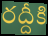
రద్దీకి